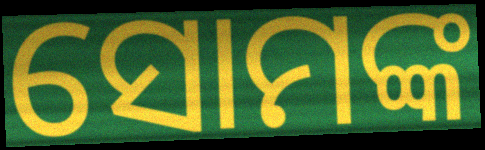
ସୋମଙ୍କ